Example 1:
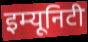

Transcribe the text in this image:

इम्यूनिटी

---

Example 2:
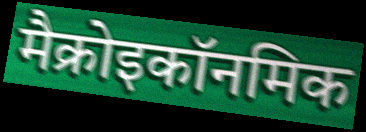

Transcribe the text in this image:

मैक्रोइकॉनमिक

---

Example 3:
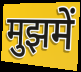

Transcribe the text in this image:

मुझमें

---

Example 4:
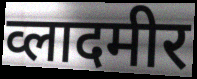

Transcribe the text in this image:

व्लादमीर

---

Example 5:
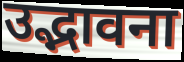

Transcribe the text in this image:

उद्भावना